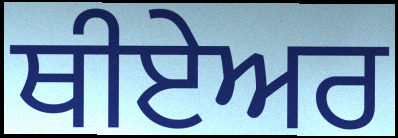
ਥੀਏਅਰ